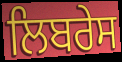
ਲਿਬਰੇਸ